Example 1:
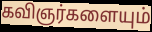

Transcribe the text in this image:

கவிஞர்களையும்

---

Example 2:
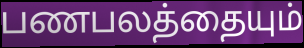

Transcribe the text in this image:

பணபலத்தையும்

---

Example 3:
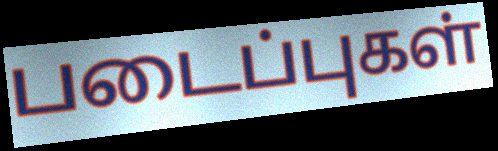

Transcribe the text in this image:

படைப்புகள்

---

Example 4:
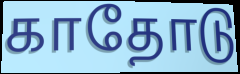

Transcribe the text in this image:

காதோடு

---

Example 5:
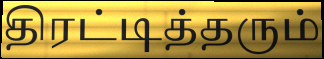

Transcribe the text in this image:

திரட்டித்தரும்